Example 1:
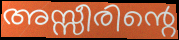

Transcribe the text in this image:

അസ്സീരിന്റെ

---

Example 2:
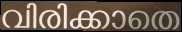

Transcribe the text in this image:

വിരിക്കാതെ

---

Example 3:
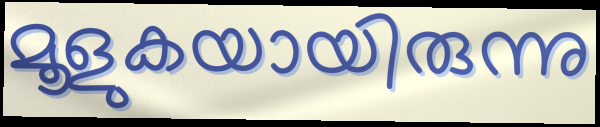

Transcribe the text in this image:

മൂളുകയായിരുന്നു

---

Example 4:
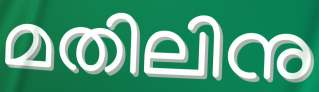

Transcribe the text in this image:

മതിലിനു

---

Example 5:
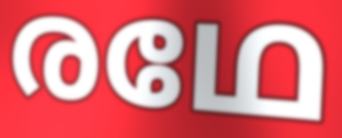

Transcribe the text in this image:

രഥേ